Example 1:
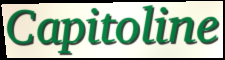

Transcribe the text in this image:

Capitoline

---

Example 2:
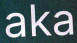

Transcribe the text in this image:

aka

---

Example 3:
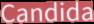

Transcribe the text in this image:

Candida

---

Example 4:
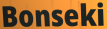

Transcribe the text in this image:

Bonseki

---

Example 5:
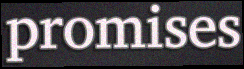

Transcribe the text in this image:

promises